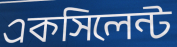
একসিলেন্ট